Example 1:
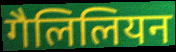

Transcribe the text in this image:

गैलिलियन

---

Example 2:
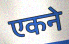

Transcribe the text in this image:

एकने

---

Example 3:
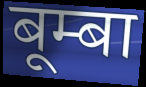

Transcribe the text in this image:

बूम्बा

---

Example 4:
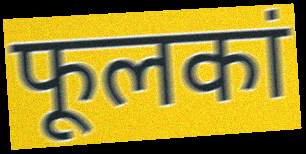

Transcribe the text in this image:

फूलकां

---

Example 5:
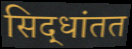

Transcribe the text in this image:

सिद्धांतत